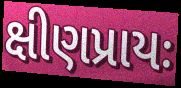
ક્ષીણપ્રાયઃ